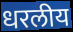
धरलीय